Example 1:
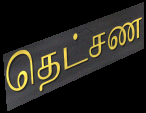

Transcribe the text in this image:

தெட்சண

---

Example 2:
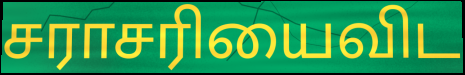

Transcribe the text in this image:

சராசரியைவிட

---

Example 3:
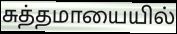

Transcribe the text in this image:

சுத்தமாயையில்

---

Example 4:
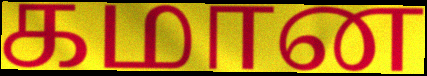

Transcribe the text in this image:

கமான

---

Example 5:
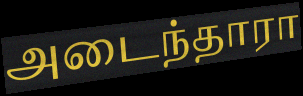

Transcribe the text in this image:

அடைந்தாரா